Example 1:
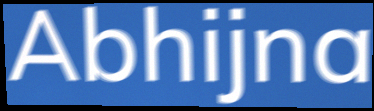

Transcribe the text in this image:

Abhijna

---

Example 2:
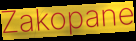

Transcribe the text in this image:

Zakopane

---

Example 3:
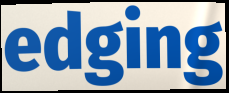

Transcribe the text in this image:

edging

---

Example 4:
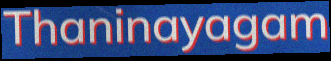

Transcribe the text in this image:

Thaninayagam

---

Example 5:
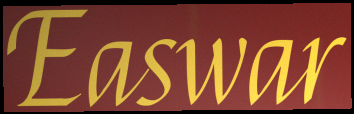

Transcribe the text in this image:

Easwar